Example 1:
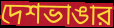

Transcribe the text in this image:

দেশভাঙার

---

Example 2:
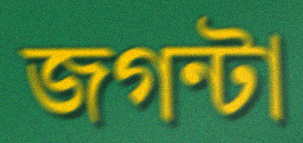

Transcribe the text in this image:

জগন্টা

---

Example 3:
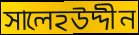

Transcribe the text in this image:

সালেহউদ্দীন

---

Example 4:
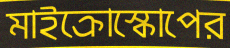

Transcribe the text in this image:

মাইক্রোস্কোপের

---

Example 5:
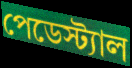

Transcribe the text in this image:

পেডেস্ট্যাল